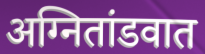
अग्नितांडवात